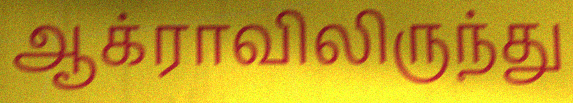
ஆக்ராவிலிருந்து